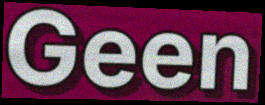
Geen